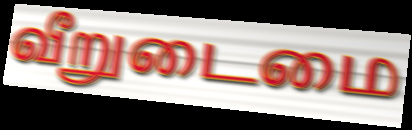
வீறுடைமை